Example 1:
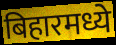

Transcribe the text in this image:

बिहारमध्ये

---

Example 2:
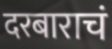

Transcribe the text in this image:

दरबाराचं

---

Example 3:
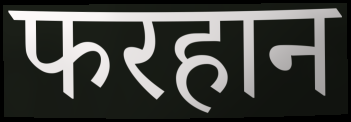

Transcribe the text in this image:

फरहान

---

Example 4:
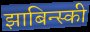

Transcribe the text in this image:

झाबिन्स्की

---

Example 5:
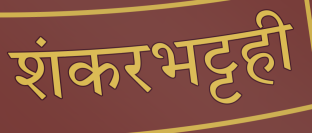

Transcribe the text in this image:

शंकरभट्टही